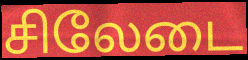
சிலேடை